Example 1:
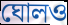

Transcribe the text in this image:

ঘোলও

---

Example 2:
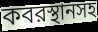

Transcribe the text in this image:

কবরস্থানসহ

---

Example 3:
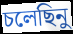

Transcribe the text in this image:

চলেছিনু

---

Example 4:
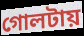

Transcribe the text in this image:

গোলটায়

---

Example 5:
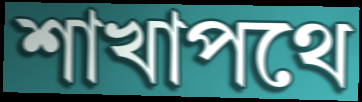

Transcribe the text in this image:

শাখাপথে